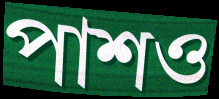
পাশও